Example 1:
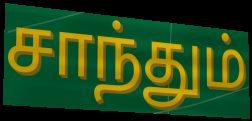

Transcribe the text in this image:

சாந்தும்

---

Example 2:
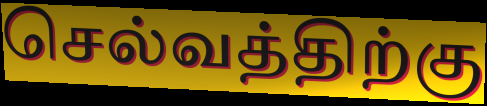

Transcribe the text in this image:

செல்வத்திற்கு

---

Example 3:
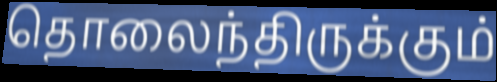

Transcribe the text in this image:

தொலைந்திருக்கும்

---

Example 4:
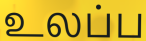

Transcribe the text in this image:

உலப்ப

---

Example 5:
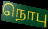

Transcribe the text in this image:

நொபு